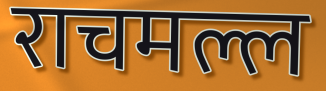
राचमल्ल